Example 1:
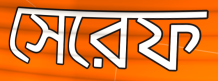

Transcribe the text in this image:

সেরেফ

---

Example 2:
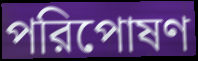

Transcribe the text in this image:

পরিপোষণ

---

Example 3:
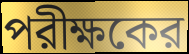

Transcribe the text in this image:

পরীক্ষকের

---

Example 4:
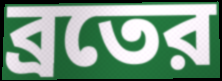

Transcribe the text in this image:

ব্রতের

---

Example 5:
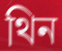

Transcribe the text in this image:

থিন